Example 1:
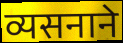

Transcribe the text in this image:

व्यसनाने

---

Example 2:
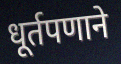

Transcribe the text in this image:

धूर्तपणाने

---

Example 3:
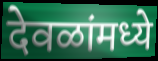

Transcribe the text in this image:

देवळांमध्ये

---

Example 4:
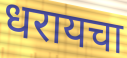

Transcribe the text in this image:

धरायचा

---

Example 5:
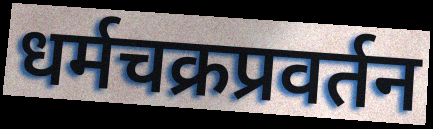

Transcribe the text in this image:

धर्मचक्रप्रवर्तन